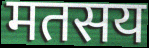
मतसय